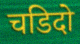
चडिदो